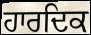
ਹਾਰਦਿਕ